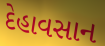
દેહાવસાન